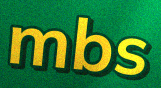
mbs